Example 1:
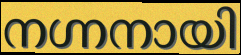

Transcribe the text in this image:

നഗ്നനായി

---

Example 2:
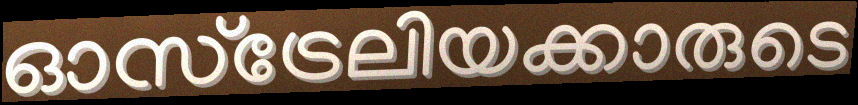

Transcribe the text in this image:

ഓസ്ട്രേലിയക്കാരുടെ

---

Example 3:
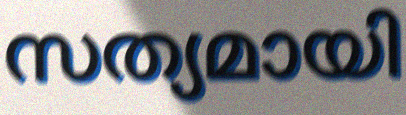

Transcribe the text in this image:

സത്യമായി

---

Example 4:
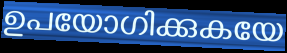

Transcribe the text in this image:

ഉപയോഗിക്കുകയേ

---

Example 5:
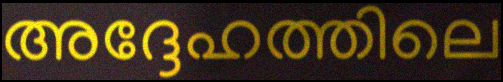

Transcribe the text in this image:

അദ്ദേഹത്തിലെ